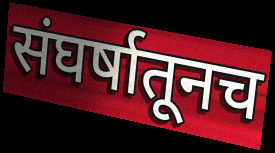
संघर्षातूनच